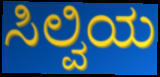
ಸಿಲ್ವಿಯ